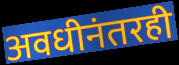
अवधीनंतरही